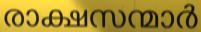
രാക്ഷസന്മാർ